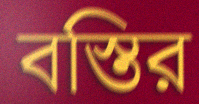
বস্তির